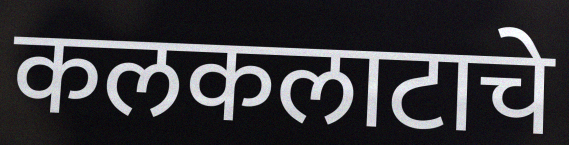
कलकलाटाचे